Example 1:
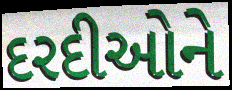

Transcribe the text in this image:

દરદીઓને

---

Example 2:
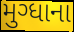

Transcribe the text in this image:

મુગ્ધાના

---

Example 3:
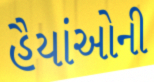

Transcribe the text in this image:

હૈયાંઓની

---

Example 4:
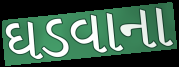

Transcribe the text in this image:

ઘડવાના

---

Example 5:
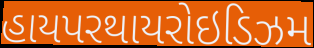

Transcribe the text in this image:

હાયપરથાયરોઇડિઝમ